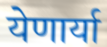
येणार्या